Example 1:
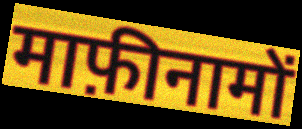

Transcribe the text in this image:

माफ़ीनामों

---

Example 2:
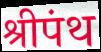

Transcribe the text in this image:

श्रीपंथ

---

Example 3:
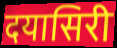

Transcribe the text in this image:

दयासिरी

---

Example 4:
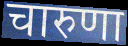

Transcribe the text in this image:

चारुणा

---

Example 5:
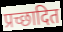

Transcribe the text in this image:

प्रच्छादित